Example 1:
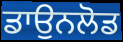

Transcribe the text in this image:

ਡਾਉਨਲੋਡ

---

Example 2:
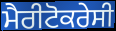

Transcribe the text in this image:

ਮੈਰੀਟੋਕਰੇਸੀ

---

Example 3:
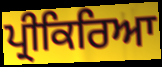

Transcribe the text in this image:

ਪ੍ਰੀਕਿਰਿਆ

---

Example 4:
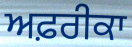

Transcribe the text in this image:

ਅਫ਼ਰੀਕਾ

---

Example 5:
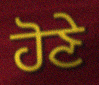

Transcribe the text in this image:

ਹੋਣੇ